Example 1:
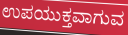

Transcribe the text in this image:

ಉಪಯುಕ್ತವಾಗುವ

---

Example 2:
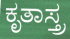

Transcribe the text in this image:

ಕೃತಾಸ್ತ್ರ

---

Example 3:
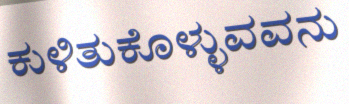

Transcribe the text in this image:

ಕುಳಿತುಕೊಳ್ಳುವವನು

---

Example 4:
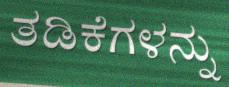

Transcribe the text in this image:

ತಡಿಕೆಗಳನ್ನು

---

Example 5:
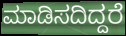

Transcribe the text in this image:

ಮಾಡಿಸದಿದ್ದರೆ